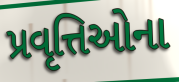
પ્રવૃત્તિઓના